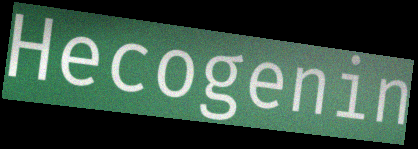
Hecogenin